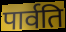
पार्वति